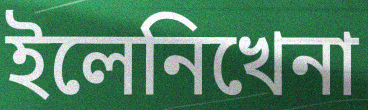
ইলেনিখেনা